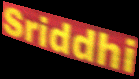
Sriddhi